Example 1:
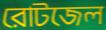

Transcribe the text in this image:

রোটজেল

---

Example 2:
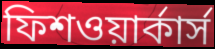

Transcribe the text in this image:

ফিশওয়ার্কার্স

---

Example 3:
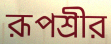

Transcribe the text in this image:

রূপশ্রীর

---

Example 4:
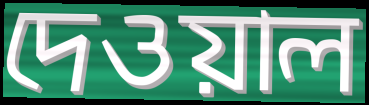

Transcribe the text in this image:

দেওয়াল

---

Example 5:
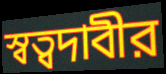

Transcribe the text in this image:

স্বত্বদাবীর